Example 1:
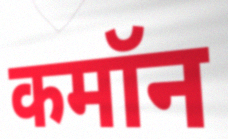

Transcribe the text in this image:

कमॉन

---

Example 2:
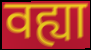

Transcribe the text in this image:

वह्या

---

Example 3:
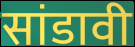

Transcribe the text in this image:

सांडावी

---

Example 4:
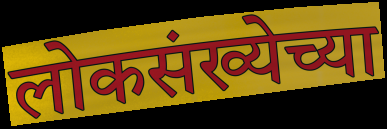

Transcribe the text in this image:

लोकसंख्येच्या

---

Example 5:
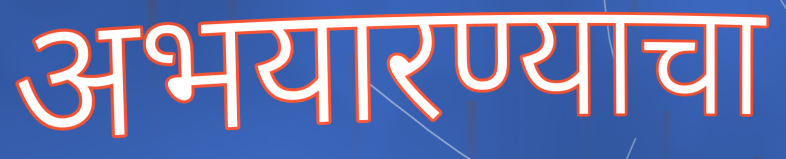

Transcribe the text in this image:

अभयारण्याचा